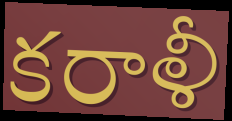
కరాళీ